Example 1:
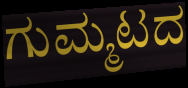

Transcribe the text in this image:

ಗುಮ್ಮಟದ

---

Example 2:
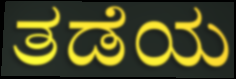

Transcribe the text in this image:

ತಡೆಯ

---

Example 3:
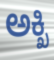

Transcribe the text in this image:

ಅಕ್ಖಿ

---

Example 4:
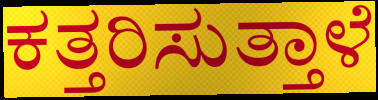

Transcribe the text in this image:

ಕತ್ತರಿಸುತ್ತಾಳೆ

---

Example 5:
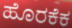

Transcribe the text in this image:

ಹೊರಕೆಕ